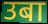
उबा